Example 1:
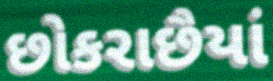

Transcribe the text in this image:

છોકરાછૈયાં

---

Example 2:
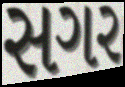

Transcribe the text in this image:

સગર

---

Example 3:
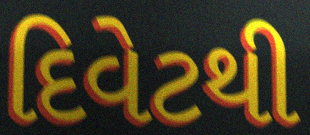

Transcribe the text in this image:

દિવેટથી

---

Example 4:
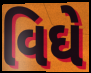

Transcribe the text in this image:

વિઘે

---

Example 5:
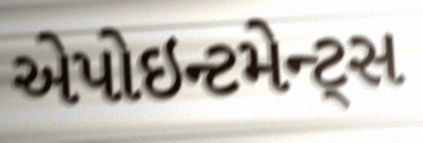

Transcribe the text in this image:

એપોઇન્ટમેન્ટ્સ